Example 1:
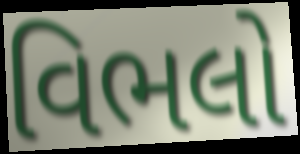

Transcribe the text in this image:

વિભલો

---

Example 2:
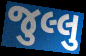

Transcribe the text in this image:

જુલ્લુ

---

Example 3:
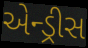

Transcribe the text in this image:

એન્ડ્રીસ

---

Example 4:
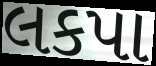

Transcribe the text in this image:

લકપા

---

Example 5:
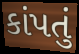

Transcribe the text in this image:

કાંપતું